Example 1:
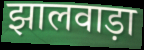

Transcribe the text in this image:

झालवाड़ा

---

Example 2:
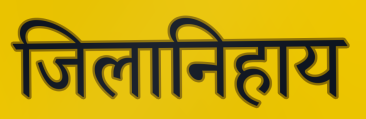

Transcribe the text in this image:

जिलानिहाय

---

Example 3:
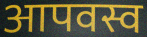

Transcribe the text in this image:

आपवस्व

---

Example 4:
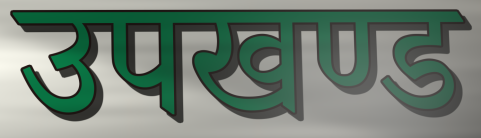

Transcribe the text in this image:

उपखण्ड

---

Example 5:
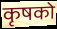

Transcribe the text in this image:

कृषको